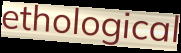
ethological